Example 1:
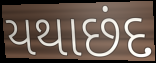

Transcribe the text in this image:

યથાછંદ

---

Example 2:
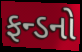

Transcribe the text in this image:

ફન્ડનો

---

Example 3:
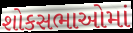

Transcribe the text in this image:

શોકસભાઓમાં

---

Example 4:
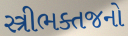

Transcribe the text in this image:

સ્ત્રીભક્તજનો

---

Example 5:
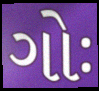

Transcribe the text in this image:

ગોઃ